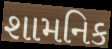
શામનિક